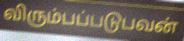
விரும்பப்படுபவன்